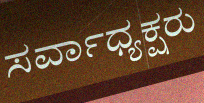
ಸರ್ವಾಧ್ಯಕ್ಷರು